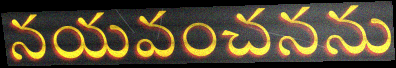
నయవంచనను